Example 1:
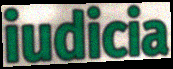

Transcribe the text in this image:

iudicia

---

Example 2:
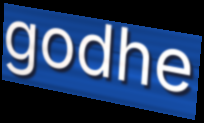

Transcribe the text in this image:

godhe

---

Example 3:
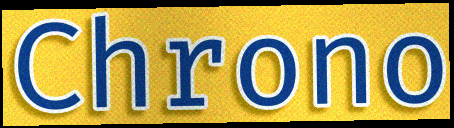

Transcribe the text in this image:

Chrono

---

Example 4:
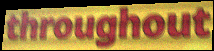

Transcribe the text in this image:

throughout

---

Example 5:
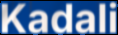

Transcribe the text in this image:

Kadali